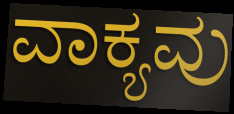
ವಾಕ್ಯವು